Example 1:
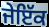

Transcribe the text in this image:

ਜੇਇੱਕ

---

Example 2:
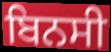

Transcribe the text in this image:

ਬਿਨਸੀ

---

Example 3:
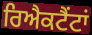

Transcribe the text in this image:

ਰਿਐਕਟੈਂਟਾਂ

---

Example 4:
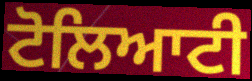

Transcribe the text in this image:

ਟੋਲਿਆਟੀ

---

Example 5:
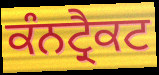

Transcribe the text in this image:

ਕੰਨਟ੍ਰੈਕਟ